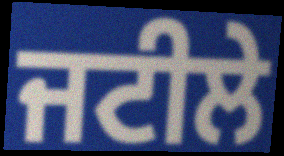
ਜਟੀਲੇ